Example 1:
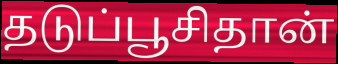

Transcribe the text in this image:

தடுப்பூசிதான்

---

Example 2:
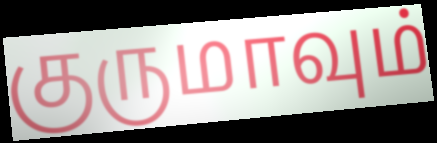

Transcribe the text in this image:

குருமாவும்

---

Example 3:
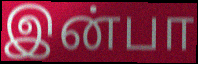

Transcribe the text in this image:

இன்பா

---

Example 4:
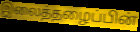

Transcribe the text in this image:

இலைத்தழைப்பின்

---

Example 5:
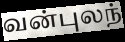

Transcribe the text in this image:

வன்புலந்